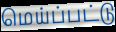
மெய்ப்பட்டு